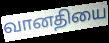
வானதியை